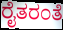
ರೈತರಂತೆ